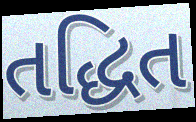
તદ્ધિત